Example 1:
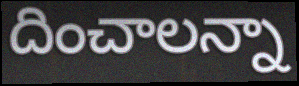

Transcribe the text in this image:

దించాలన్నా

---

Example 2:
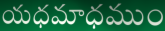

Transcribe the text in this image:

యధమాధముం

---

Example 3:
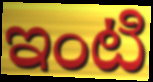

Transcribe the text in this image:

ఇంటి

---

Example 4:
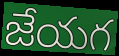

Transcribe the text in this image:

జేయగ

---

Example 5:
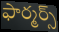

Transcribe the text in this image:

ఫార్మర్స్